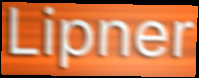
Lipner